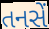
તનસેં